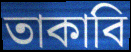
তাকাবি